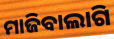
ମାଜିବାଲାଗି